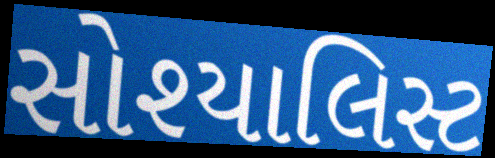
સોશ્યાલિસ્ટ